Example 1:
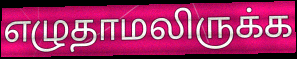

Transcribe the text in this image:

எழுதாமலிருக்க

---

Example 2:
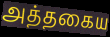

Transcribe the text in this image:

அத்தகைய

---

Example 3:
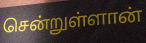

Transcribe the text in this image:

சென்றுள்ளான்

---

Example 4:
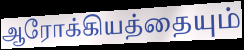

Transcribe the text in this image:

ஆரோக்கியத்தையும்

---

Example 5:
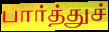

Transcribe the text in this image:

பார்த்துச்